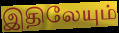
இதிலேயும்